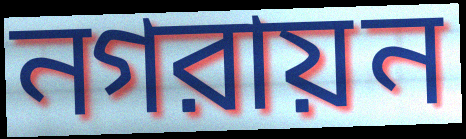
নগরায়ন